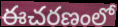
ఈచరణంలో